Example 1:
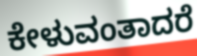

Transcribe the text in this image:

ಕೇಳುವಂತಾದರೆ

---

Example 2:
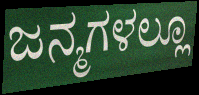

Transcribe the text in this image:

ಜನ್ಮಗಳಲ್ಲೂ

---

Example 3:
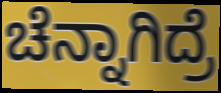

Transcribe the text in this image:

ಚೆನ್ನಾಗಿದ್ರೆ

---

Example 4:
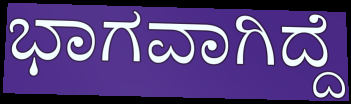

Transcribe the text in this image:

ಭಾಗವಾಗಿದ್ದೆ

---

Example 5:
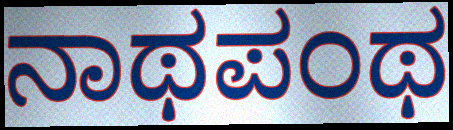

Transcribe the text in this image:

ನಾಥಪಂಥ